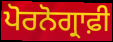
ਪੋਰਨੋਗ੍ਰਾਫ਼ੀ